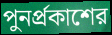
পুনর্প্রকাশের